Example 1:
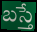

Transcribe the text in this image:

బస్తే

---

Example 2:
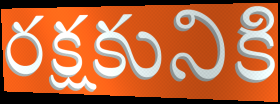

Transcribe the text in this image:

రక్షకునికి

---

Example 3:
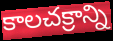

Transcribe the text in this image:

కాలచక్రాన్ని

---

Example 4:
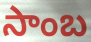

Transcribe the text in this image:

సాంబ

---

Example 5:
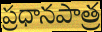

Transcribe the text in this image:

ప్రధానపాత్ర